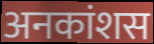
अनकांशस